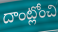
దాంట్లోంచి